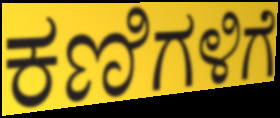
ಕಣಿಗಳಿಗೆ